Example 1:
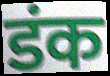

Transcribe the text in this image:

डंक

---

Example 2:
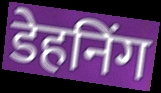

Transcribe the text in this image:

डेहनिंग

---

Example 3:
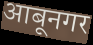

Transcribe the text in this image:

आबूनगर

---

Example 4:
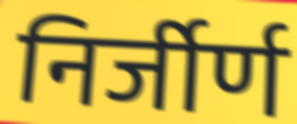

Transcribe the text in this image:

निर्जीर्ण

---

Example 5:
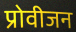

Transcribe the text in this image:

प्रोवीजन